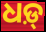
ଧଡ଼୍